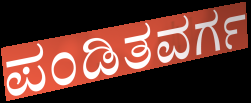
ಪಂಡಿತವರ್ಗ